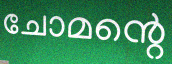
ചോമന്റെ